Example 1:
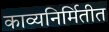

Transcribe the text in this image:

काव्यनिर्मितीत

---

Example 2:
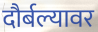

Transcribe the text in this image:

दौर्बल्यावर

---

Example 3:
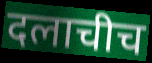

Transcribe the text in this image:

दलाचीच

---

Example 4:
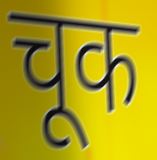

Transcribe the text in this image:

चूक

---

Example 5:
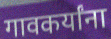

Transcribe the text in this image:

गावकर्यांना